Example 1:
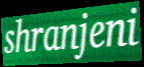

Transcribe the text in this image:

shranjeni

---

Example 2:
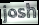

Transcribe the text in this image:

josh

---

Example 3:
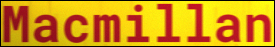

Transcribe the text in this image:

Macmillan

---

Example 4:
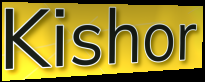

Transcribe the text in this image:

Kishor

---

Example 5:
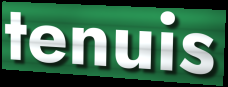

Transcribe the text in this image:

tenuis